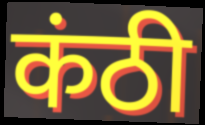
कंठी